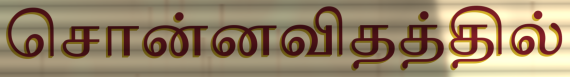
சொன்னவிதத்தில்